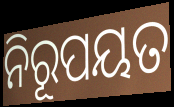
ନିରୂପୟତ